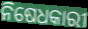
ନିଷେଧକାରୀ